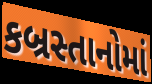
કબ્રસ્તાનોમાં